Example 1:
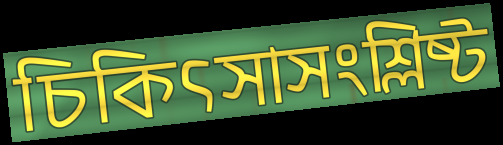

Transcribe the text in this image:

চিকিৎসাসংশ্লিষ্ট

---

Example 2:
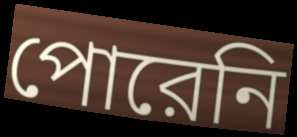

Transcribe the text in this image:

পোরেনি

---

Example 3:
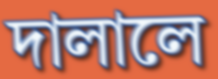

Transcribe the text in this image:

দালালে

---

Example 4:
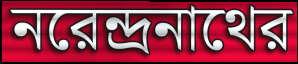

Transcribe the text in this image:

নরেন্দ্রনাথের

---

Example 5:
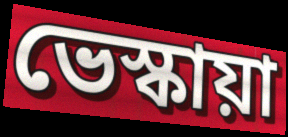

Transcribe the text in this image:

ভেস্কায়া